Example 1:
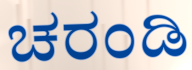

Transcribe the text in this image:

ಚರಂಡಿ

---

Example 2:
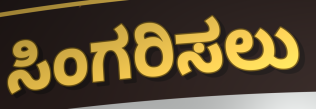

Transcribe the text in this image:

ಸಿಂಗರಿಸಲು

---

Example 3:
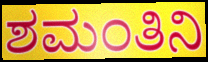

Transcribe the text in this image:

ಶಮಂತಿನಿ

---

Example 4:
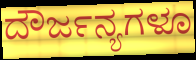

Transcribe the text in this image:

ದೌರ್ಜನ್ಯಗಳೂ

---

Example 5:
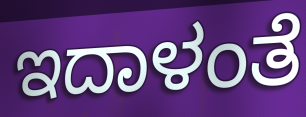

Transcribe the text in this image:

ಇದಾಳಂತೆ